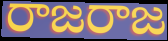
రాజరాజ